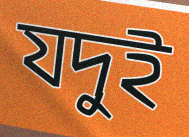
যদুই